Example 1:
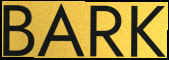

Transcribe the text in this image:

BARK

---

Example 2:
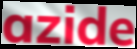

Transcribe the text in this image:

azide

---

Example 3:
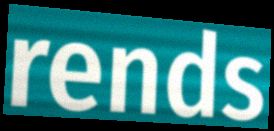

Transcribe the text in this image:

rends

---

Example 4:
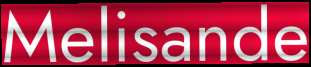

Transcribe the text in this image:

Melisande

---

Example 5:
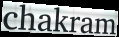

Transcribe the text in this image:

chakram